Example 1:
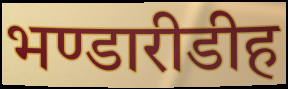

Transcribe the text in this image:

भण्डारीडीह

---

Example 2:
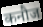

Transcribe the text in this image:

कनौज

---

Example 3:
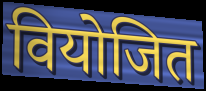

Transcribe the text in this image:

वियोजित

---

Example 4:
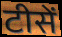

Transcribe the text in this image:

टीसें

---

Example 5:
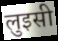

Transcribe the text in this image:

लुइसी